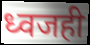
ध्वजही